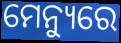
ମେନ୍ୟୁରେ